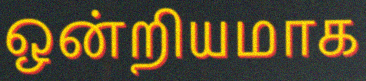
ஒன்றியமாக